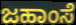
ಜಹಾಂಸೆ